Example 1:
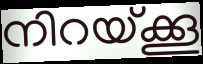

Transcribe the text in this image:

നിറയ്ക്കൂ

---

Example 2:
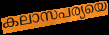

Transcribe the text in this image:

കലാസപര്യയെ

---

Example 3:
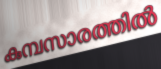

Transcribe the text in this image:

കുമ്പസാരത്തിൽ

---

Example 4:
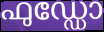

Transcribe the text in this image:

ഫുഡ്ഡോ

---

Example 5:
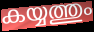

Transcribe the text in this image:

കയ്യത്തും